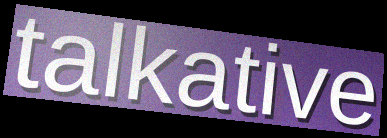
talkative